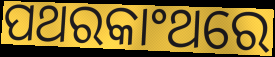
ପଥରକାଂଥରେ